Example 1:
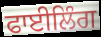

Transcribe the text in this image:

ਫਾਈਲਿੰਗ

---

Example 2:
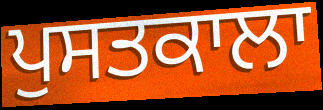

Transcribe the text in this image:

ਪੁਸਤਕਾਲਾ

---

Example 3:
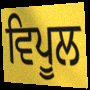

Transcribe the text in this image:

ਵਿਪੂਲ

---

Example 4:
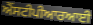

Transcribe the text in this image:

ਐੱਸਟੀਪੀਆਰਆਈ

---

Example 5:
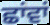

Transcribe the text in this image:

ਛਾਂਵਾਂ